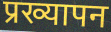
प्रख्यापन